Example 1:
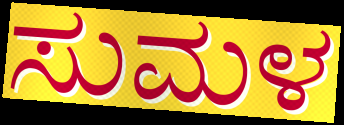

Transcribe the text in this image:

ಸುಮಳ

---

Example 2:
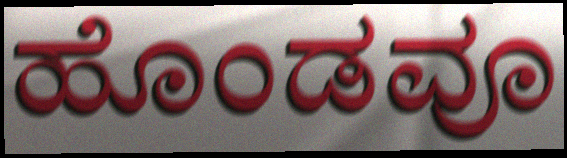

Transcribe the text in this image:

ಹೊಂಡವೂ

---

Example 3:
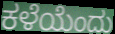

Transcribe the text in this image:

ಕಳೆಯೆಂದು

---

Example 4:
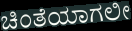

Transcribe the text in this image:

ಚಿಂತೆಯಾಗಲೀ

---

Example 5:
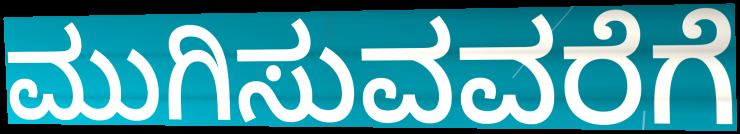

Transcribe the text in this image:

ಮುಗಿಸುವವರೆಗೆ